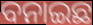
ବନାଇଛ